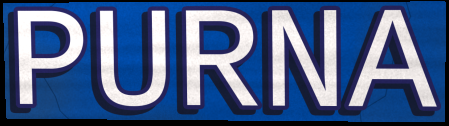
PURNA